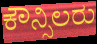
ಕೌನ್ಸಿಲರು